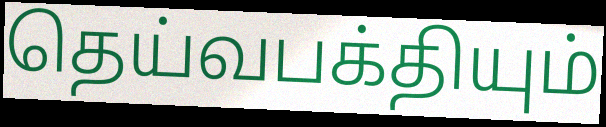
தெய்வபக்தியும்